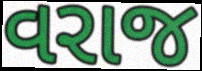
વરાજ